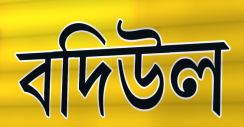
বদিউল